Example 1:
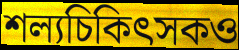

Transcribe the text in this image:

শল্যচিকিৎসকও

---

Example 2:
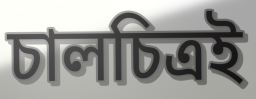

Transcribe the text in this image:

চালচিত্রই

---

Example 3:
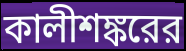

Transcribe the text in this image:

কালীশঙ্করের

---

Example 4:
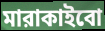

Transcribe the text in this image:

মারাকাইবো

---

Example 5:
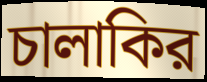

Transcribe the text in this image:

চালাকির